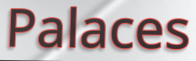
Palaces